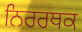
ਨਿਰਰਥਕ